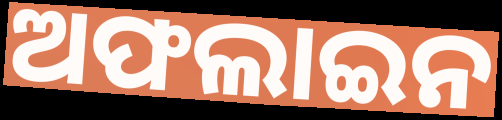
ଅଫଲାଇନ